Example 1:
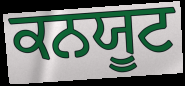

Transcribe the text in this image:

ਕਨਯੂਟ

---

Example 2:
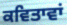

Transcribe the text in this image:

ਕਵਿਤਾਵਾਂ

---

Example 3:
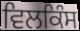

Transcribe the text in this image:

ਵਿਲਕਿੰਸ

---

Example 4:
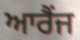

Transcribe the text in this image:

ਆਰੈਂਜ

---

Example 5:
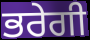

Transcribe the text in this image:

ਭਰੇਗੀ